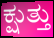
ಕ್ಷುತ್ತು